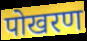
पोखरण